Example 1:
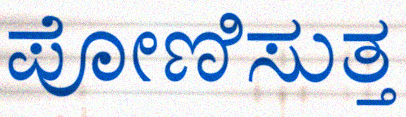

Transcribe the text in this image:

ಪೋಣಿಸುತ್ತ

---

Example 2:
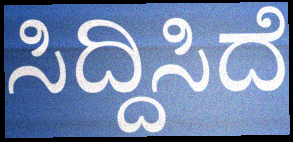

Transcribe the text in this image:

ಸಿದ್ದಿಸಿದೆ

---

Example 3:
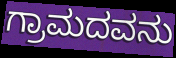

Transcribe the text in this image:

ಗ್ರಾಮದವನು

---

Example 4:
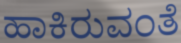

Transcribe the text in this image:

ಹಾಕಿರುವಂತೆ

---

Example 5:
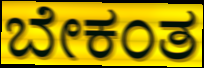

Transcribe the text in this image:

ಬೇಕಂತ